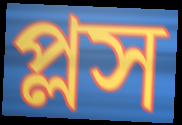
প্লস